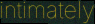
intimately